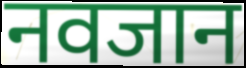
नवजान